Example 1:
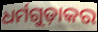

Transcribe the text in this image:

ଧର୍ମଗୁଡ଼ାକର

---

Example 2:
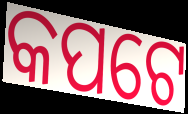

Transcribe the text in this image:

କପଟେ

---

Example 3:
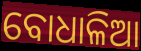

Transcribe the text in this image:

ବୋଧାଳିଆ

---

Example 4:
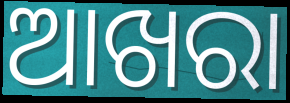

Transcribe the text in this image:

ଆଖରା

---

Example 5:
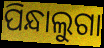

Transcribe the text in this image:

ପିନ୍ଧାଲୁଗା